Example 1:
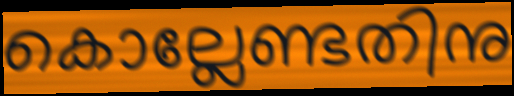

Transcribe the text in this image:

കൊല്ലേണ്ടതിനു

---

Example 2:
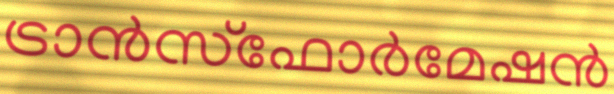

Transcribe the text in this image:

ട്രാൻസ്ഫോർമേഷൻ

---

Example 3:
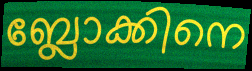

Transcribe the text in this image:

ബ്ലോക്കിനെ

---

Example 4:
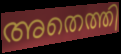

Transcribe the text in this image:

അതെത്തി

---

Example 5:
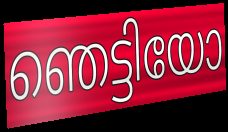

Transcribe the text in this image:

ഞെട്ടിയോ